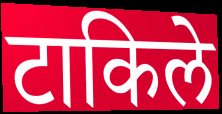
टाकिले